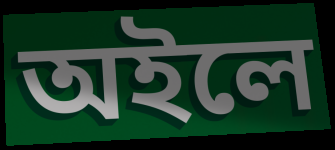
অইলে